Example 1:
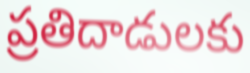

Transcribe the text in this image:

ప్రతిదాడులకు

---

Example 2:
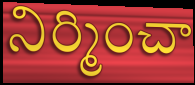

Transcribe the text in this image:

నిర్మించా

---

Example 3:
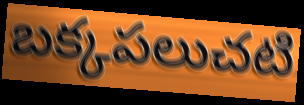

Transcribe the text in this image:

బక్కపలుచటి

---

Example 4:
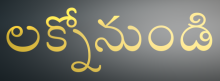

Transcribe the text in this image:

లక్నోనుండి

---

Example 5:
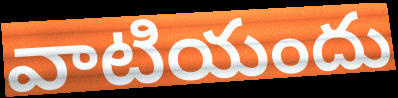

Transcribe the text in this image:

వాటియందు